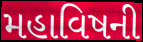
મહાવિષની